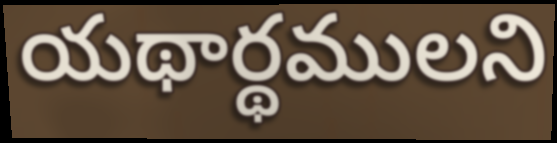
యథార్థములని